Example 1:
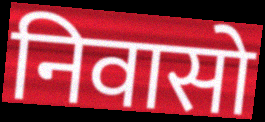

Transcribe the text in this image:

निवासो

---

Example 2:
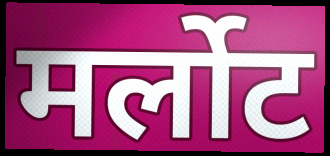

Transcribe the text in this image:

मर्लोट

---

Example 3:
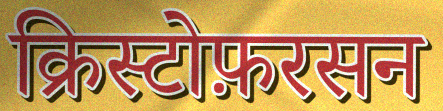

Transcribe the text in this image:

क्रिस्टोफ़रसन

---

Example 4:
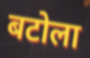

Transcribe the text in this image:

बटोला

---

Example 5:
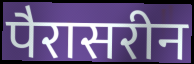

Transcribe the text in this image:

पैरासरीन